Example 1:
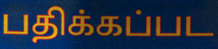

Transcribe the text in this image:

பதிக்கப்பட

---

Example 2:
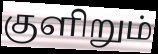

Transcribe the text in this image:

குளிறும்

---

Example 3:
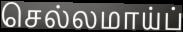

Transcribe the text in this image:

செல்லமாய்ப்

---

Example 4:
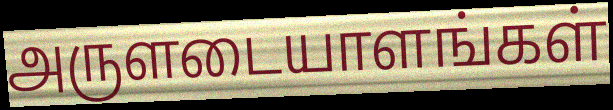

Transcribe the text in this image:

அருளடையாளங்கள்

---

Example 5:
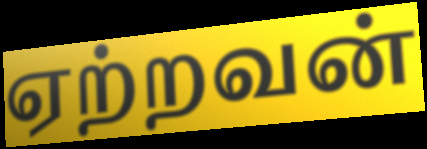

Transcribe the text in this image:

ஏற்றவன்